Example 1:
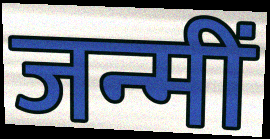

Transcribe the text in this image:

जन्मीं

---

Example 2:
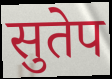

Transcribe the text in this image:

सुतेप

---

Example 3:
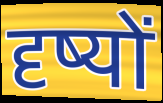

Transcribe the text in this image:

दृष्यों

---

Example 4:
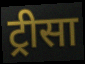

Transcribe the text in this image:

ट्रीसा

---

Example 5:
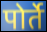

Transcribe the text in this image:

पोर्ते